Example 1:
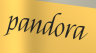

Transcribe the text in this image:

pandora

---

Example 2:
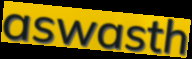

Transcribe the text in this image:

aswasth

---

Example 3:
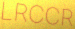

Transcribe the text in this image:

LRCCR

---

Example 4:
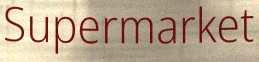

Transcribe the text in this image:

Supermarket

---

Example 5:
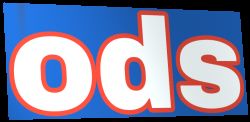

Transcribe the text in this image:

ods